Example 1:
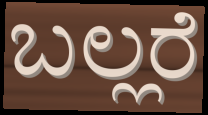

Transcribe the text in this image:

ಬಲ್ಲರೆ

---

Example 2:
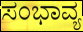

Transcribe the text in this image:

ಸಂಭಾವ್ಯ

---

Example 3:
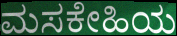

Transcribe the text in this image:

ಮಸಕೇಹಿಯ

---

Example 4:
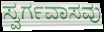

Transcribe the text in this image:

ಸ್ವರ್ಗವಾಸವು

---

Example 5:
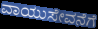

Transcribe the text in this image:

ವಾಯುಸೇವನೆಗೆ